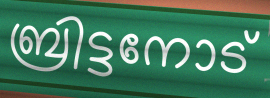
ബ്രിട്ടനോട്